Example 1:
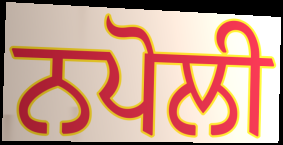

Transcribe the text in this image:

ਨਪੋਲੀ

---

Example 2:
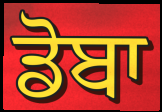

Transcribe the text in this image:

ਡੋਬਾ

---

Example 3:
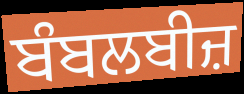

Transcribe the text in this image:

ਬੰਬਲਬੀਜ਼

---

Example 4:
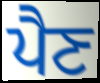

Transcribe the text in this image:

ਪੈਣ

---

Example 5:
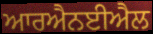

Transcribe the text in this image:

ਆਰਐਨਈਐਲ